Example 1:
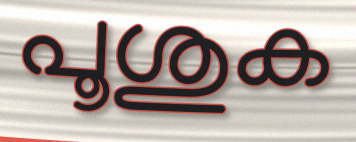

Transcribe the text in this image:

പൂശുക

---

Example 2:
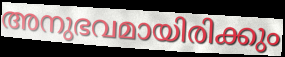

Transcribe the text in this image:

അനുഭവമായിരിക്കും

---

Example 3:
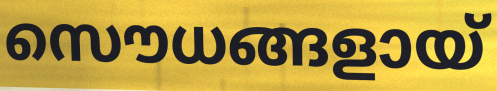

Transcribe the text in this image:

സൌധങ്ങളായ്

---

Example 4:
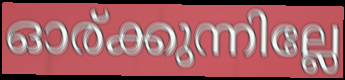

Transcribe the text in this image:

ഓര്ക്കുന്നില്ലേ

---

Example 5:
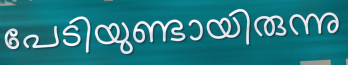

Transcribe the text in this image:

പേടിയുണ്ടായിരുന്നു